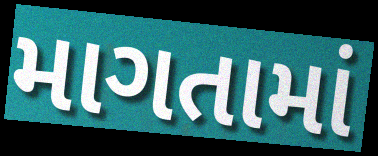
માગતામાં